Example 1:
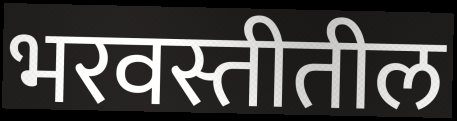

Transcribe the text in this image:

भरवस्तीतील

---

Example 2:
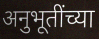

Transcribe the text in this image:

अनुभूतींच्या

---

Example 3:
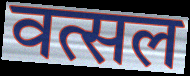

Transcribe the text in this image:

वत्सल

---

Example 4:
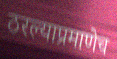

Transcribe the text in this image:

ठरल्याप्रमाणेच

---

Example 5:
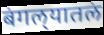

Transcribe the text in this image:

बंगल्यातलं